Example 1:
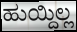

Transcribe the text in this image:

ಹುಯ್ದಿಲ್ಲ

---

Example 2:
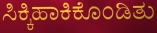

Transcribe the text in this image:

ಸಿಕ್ಕಿಹಾಕಿಕೊಂಡಿತು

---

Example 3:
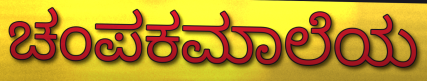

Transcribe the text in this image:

ಚಂಪಕಮಾಲೆಯ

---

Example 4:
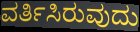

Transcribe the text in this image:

ವರ್ತಿಸಿರುವುದು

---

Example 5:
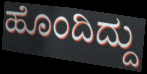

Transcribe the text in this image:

ಹೊಂದಿದ್ದು